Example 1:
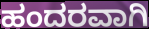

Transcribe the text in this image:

ಹಂದರವಾಗಿ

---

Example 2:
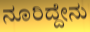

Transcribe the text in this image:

ನೂರಿದ್ದೇನು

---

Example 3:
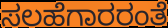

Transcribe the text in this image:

ಸಲಹೆಗಾರರಂತೆ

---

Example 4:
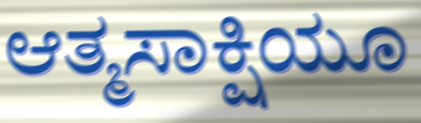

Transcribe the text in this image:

ಆತ್ಮಸಾಕ್ಷಿಯೂ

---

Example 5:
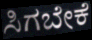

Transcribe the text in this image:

ಸಿಗಬೇಕೆ